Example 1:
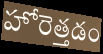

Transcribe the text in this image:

హోరెత్తడం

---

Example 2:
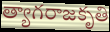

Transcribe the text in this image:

త్యాగరాజకృతి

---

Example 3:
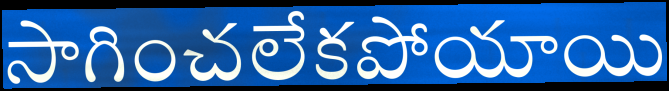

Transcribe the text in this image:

సాగించలేకపోయాయి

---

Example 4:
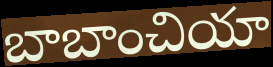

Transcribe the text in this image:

బాబాంచియా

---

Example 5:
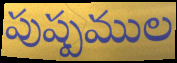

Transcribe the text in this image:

పుష్పముల